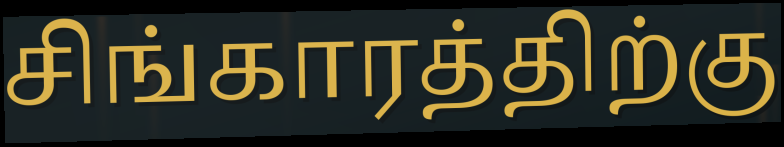
சிங்காரத்திற்கு